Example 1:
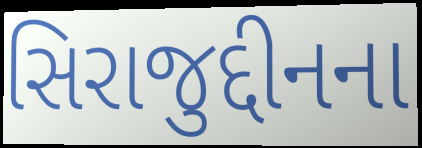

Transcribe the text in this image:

સિરાજુદ્દીનના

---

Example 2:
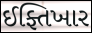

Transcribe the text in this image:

ઈફ્તિખાર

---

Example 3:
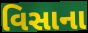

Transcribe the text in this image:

વિસાના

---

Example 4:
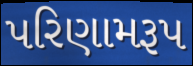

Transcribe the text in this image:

પરિણામરૂપ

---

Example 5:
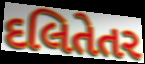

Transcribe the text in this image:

દલિતેતર